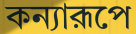
কন্যারূপে